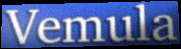
Vemula